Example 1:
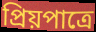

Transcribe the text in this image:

প্রিয়পাত্রে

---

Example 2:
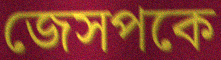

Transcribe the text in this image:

জেসপকে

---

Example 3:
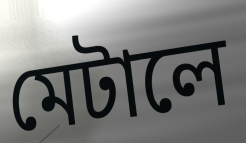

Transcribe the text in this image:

মেটালে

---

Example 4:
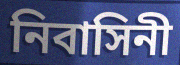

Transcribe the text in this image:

নিবাসিনী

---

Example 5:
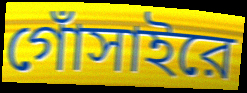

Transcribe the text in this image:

গোঁসাইরে